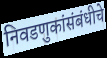
निवडणुकांसंबंधीचे